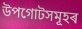
উপগোটসমূহৰ